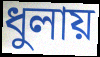
ধুলায়